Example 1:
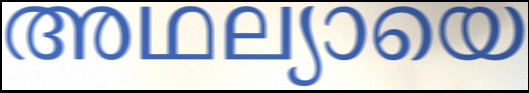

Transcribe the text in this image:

അഥല്യായെ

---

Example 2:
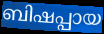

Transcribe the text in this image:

ബിഷപ്പായ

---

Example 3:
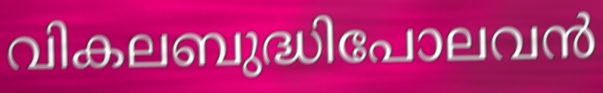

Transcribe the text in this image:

വികലബുദ്ധിപോലവൻ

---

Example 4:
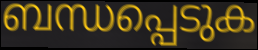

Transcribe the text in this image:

ബന്ധപ്പെടുക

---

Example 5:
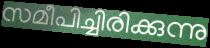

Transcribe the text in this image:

സമീപിച്ചിരിക്കുന്നു